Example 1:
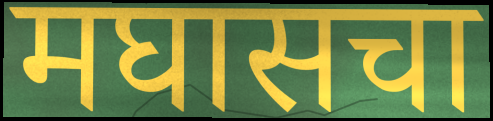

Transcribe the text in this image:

मघासचा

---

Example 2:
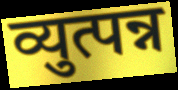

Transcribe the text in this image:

व्युत्पन्न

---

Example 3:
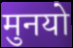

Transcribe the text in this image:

मुनयो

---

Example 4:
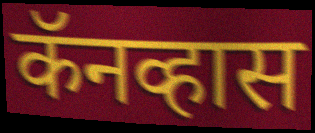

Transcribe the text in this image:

कॅनव्हास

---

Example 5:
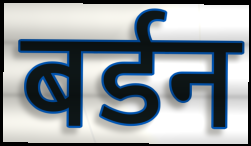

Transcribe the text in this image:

बर्डन